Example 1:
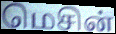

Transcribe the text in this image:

மெசின்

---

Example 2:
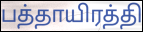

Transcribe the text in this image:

பத்தாயிரத்தி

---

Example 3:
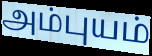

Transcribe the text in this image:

அம்புயம்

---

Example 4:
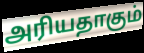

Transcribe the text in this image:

அரியதாகும்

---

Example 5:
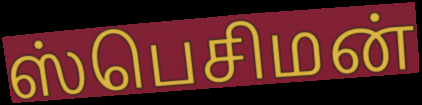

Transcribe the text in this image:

ஸ்பெசிமன்